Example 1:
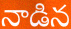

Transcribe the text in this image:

నాడిన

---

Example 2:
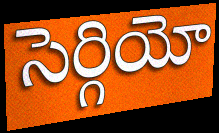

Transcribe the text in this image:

సెర్గియో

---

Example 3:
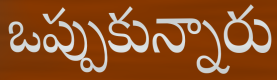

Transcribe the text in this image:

ఒప్పుకున్నారు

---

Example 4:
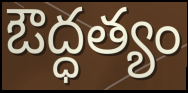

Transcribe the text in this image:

ఔద్ధత్యం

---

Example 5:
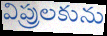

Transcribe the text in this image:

విప్రులకును